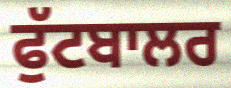
ਫੁੱਟਬਾਲਰ